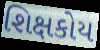
શિક્ષકોય